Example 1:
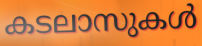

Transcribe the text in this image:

കടലാസുകൾ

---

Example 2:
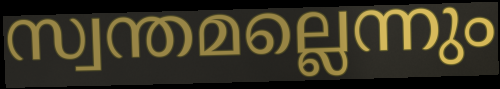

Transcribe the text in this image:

സ്വന്തമല്ലെന്നും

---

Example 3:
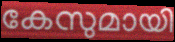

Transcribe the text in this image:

കേസുമായി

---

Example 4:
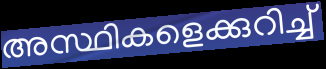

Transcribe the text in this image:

അസ്ഥികളെക്കുറിച്ച്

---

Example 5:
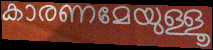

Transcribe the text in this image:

കാരണമേയുള്ളൂ